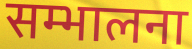
सम्भालना